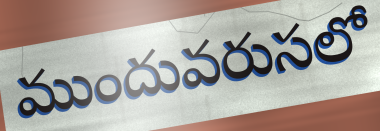
ముందువరుసలో